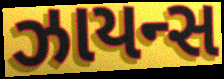
ઝાયન્સ